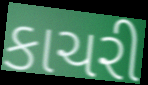
કાચરી